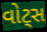
વોટ્સ